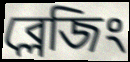
ব্লেজিং